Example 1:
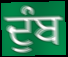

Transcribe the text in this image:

ਦੁੰਬ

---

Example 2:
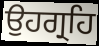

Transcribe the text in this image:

ਉਹਗ੍ਰਹਿ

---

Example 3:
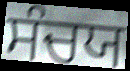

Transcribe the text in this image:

ਸੰਚਯ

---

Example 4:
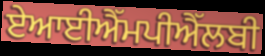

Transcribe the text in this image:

ਏਆਈਐੱਮਪੀਐੱਲਬੀ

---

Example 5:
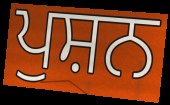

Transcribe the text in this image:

ਪੁਸ਼ਨ